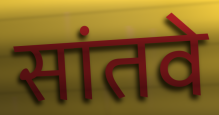
सांतवे